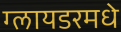
ग्लायडरमधे